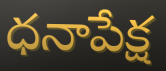
ధనాపేక్ష